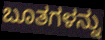
ಬೂತಗಳನ್ನು